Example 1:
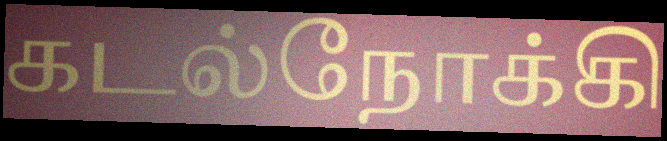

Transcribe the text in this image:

கடல்நோக்கி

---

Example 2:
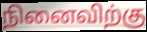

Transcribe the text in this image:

நினைவிற்கு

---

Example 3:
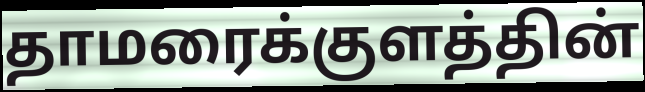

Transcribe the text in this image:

தாமரைக்குளத்தின்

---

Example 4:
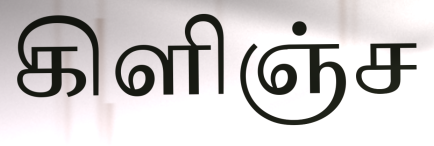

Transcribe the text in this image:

கிளிஞ்ச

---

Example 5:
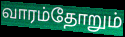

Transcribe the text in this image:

வாரம்தோறும்